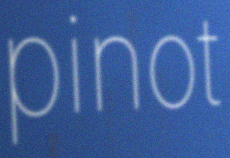
pinot